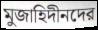
মুজাহিদীনদের